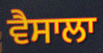
ਵੈਸਾਲਾ